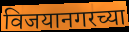
विजयानगरच्या